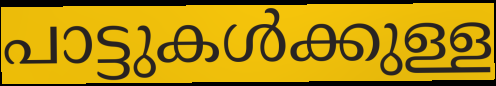
പാട്ടുകൾക്കുള്ള